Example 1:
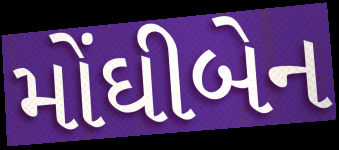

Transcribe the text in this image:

મોંઘીબેન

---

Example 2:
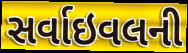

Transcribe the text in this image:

સર્વાઇવલની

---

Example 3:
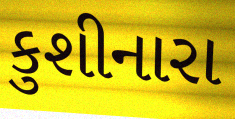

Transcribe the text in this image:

કુશીનારા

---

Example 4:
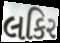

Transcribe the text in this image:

લકિર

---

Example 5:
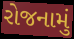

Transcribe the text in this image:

રોજનામું